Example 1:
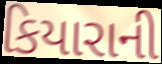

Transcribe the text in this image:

કિયારાની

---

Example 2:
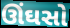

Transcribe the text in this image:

ઊંઘસો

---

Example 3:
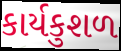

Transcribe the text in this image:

કાર્યકુશળ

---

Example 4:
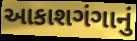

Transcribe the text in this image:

આકાશગંગાનું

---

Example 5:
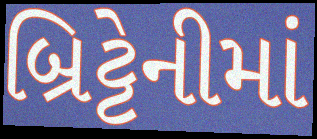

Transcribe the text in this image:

બ્રિટ્ટેનીમાં